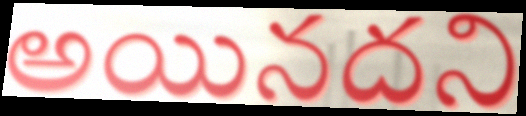
అయినదని